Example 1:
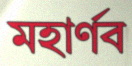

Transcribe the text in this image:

মহার্ণব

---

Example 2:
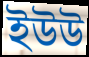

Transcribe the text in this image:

ইউউ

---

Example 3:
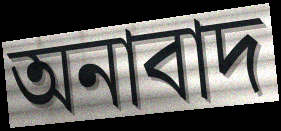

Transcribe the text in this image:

অনাবাদ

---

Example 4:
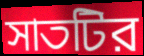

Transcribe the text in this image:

সাতটির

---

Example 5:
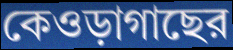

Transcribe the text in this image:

কেওড়াগাছের